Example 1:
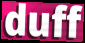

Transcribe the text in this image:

duff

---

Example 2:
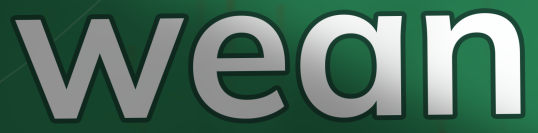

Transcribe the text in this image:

wean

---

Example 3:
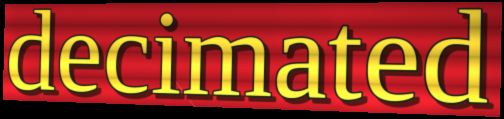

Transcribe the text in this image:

decimated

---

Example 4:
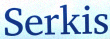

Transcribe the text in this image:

Serkis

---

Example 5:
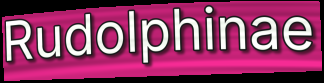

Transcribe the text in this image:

Rudolphinae